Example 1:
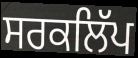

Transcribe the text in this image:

ਸਰਕਲਿੱਪ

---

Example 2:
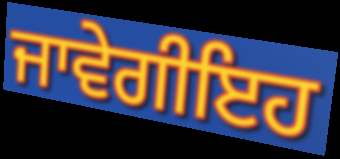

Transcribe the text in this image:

ਜਾਵੇਗੀਇਹ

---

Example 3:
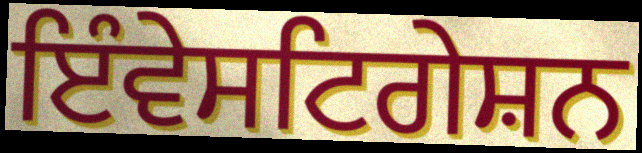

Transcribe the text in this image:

ਇੰਵੇਸਟਿਗੇਸ਼ਨ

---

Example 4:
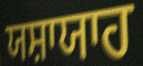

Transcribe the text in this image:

ਯਸ਼ਾਯਾਹ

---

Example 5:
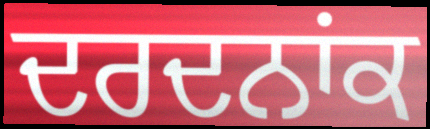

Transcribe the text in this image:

ਦਰਦਨਾਂਕ